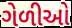
ગેળીઓ